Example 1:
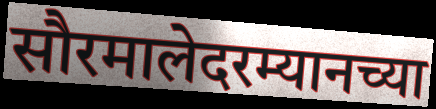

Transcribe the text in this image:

सौरमालेदरम्यानच्या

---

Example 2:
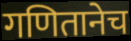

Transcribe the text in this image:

गणितानेच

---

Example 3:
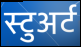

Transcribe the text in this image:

स्टुअर्ट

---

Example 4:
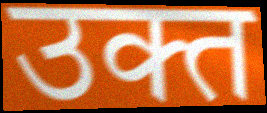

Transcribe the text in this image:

उक्त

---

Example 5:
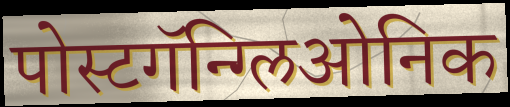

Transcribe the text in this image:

पोस्टगॅन्ग्लिओनिक